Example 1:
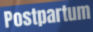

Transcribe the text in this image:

Postpartum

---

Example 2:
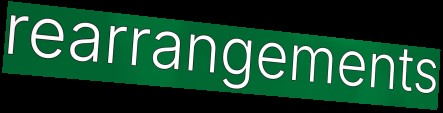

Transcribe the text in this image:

rearrangements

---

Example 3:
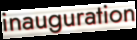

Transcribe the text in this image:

inauguration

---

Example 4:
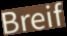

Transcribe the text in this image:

Breif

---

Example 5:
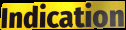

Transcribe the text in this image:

Indication